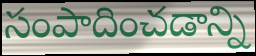
సంపాదించడాన్ని